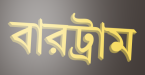
বারট্রাম